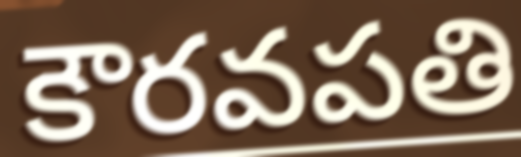
కౌరవపతి